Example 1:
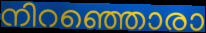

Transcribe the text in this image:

നിറഞ്ഞൊരാ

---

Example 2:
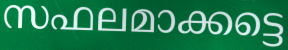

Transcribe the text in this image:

സഫലമാക്കട്ടെ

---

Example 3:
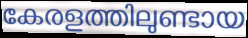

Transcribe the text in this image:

കേരളത്തിലുണ്ടായ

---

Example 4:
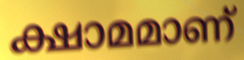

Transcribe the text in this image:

ക്ഷാമമാണ്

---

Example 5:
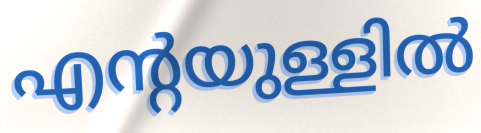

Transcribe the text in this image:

എന്റയുള്ളിൽ